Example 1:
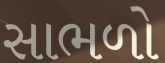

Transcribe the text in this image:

સાભળો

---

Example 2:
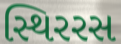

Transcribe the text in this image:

સ્થિરરસ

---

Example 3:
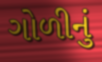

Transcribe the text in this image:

ગોળીનું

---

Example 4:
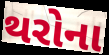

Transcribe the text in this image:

થરોના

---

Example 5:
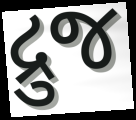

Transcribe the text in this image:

દ્રુજ